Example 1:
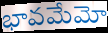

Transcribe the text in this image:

భావమేమో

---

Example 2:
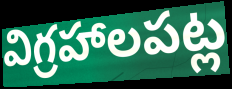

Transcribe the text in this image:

విగ్రహాలపట్ల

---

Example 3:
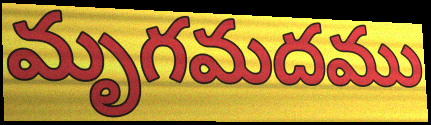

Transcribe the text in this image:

మృగమదము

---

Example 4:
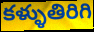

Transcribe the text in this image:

కళ్ళుతిరిగి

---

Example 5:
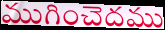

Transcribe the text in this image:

ముగించెదము